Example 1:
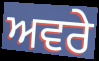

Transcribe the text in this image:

ਅਵਰੇ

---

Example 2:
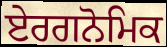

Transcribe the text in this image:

ਏਰਗਨੋਮਿਕ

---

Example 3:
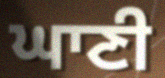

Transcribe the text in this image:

ਘਾਣੀ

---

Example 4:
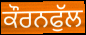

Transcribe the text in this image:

ਕੌਰਨਫੁੱਲ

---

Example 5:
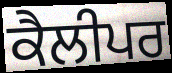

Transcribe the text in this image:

ਕੈਲੀਪਰ